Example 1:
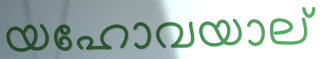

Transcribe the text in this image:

യഹോവയാല്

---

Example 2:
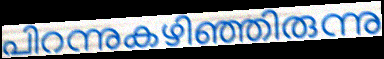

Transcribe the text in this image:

പിറന്നുകഴിഞ്ഞിരുന്നു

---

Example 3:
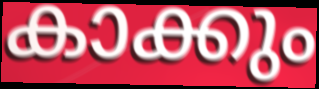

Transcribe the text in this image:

കാക്കും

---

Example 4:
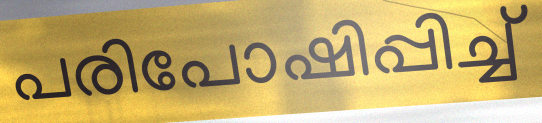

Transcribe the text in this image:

പരിപോഷിപ്പിച്ച്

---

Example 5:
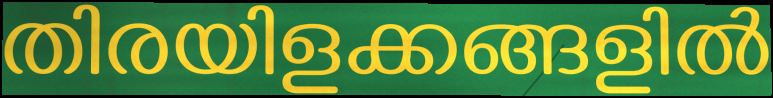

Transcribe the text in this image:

തിരയിളക്കങ്ങളിൽ